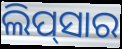
ଲିପ୍‌ସାର